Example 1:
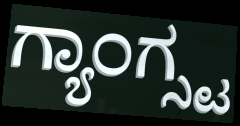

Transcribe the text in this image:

ಗ್ಯಾಂಗ್ಸ್ಟ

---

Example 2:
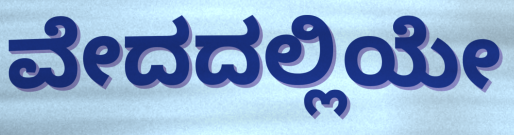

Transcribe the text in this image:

ವೇದದಲ್ಲಿಯೇ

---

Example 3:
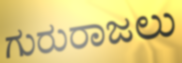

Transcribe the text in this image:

ಗುರುರಾಜಲು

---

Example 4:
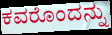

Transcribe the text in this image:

ಕವರೊಂದನ್ನು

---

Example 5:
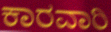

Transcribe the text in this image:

ಕಾರವಾರಿ